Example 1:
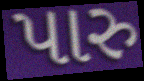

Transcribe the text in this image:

પારુ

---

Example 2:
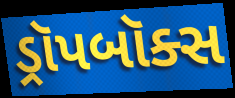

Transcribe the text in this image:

ડ્રૉપબૉક્સ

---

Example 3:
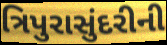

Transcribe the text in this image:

ત્રિપુરાસુંદરીની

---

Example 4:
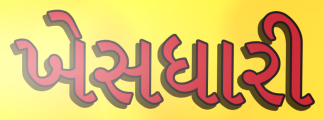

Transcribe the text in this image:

ખેસધારી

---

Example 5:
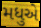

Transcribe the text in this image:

મધુએ